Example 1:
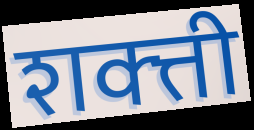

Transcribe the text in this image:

शक्त्ती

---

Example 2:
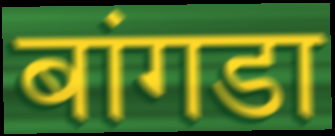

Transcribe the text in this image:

बांगडा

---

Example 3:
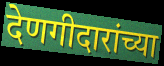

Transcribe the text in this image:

देणगीदारांच्या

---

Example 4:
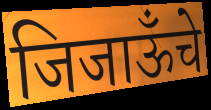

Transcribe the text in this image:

जिजाऊँचे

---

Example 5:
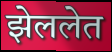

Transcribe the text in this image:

झेललेत